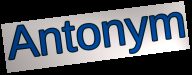
Antonym